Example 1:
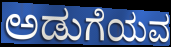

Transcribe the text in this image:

ಅಡುಗೆಯವ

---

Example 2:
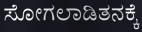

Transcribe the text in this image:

ಸೋಗಲಾಡಿತನಕ್ಕೆ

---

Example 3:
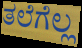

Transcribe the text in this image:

ತಲೆಗೆಲ್ಲ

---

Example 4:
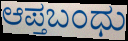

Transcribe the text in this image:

ಆಪ್ತಬಂಧು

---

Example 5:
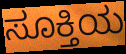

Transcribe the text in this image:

ಸೂಕ್ತಿಯ